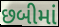
છબીમાં